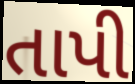
તાપી